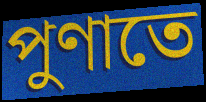
পুণাতে